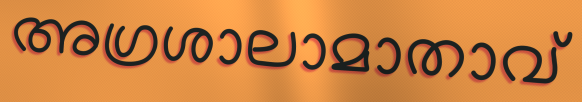
അഗ്രശാലാമാതാവ്